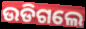
ଉଡିଗଲେ